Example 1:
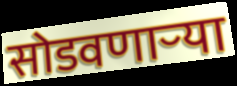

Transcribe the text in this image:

सोडवणाऱ्या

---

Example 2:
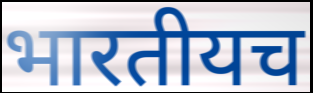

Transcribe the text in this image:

भारतीयच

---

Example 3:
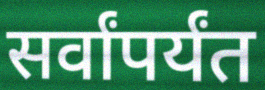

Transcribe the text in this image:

सर्वांपर्यंत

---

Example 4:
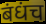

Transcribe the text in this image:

बंधंच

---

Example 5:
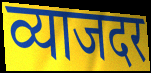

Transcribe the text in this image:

व्याजदर